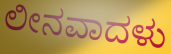
ಲೀನವಾದಳು